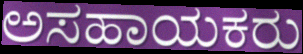
ಅಸಹಾಯಕರು